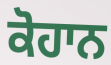
ਕੋਹਾਨ